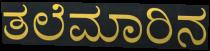
ತಲೆಮಾರಿನ